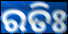
ରତିଃ